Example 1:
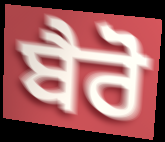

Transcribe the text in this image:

ਬੈਰੋ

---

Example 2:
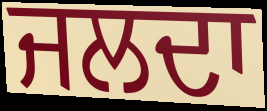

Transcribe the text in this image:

ਜਲਦਾ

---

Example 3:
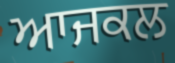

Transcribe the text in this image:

ਆਜਕਲ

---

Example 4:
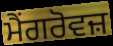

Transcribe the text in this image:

ਮੈਂਗਰੋਵਜ਼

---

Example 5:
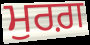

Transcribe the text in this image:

ਮੁਰਗ਼